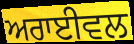
ਅਰਾਈਵਲ